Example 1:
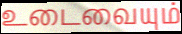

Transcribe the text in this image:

உடைவையும்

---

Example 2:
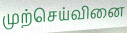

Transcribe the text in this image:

முற்செய்வினை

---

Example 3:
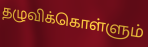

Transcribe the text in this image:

தழுவிக்கொள்ளும்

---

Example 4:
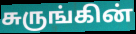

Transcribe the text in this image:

சுருங்கின்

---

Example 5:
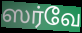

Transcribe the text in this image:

ஸர்வே